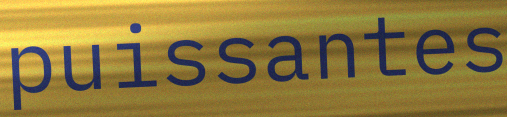
puissantes